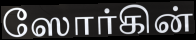
ஸோர்கின்